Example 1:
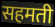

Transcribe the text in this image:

सहमती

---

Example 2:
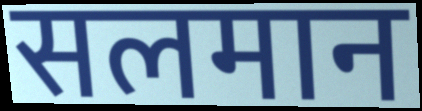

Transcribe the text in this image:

सलमान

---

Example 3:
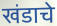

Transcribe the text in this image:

खंडाचे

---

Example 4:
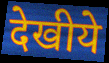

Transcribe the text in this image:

देखीये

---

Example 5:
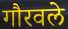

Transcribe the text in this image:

गौरवले